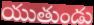
యుతుండు